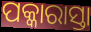
ପକ୍କାରାସ୍ତା